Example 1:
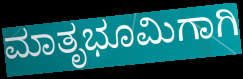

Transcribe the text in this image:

ಮಾತೃಭೂಮಿಗಾಗಿ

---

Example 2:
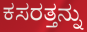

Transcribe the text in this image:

ಕಸರತ್ತನ್ನು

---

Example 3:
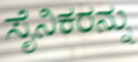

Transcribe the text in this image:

ಸೈನಿಕರನ್ನು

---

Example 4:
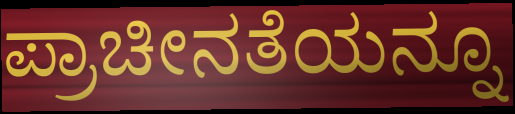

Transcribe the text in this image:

ಪ್ರಾಚೀನತೆಯನ್ನೂ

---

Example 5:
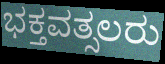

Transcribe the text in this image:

ಭಕ್ತವತ್ಸಲರು